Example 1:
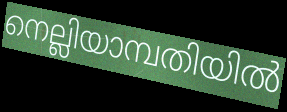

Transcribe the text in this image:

നെല്ലിയാമ്പതിയിൽ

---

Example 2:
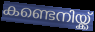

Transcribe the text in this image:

കണ്ടെനിയ്ക്ക്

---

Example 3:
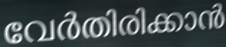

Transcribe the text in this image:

വേർതിരിക്കാൻ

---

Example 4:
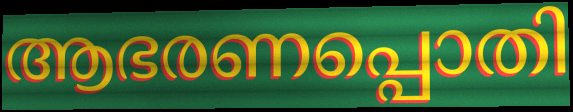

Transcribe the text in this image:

ആഭരണപ്പൊതി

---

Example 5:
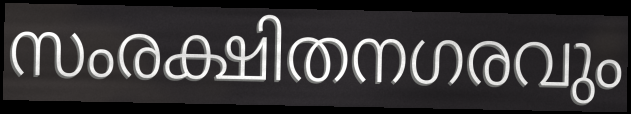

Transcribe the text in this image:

സംരക്ഷിതനഗരവും